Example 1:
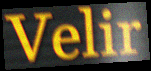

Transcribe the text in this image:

Velir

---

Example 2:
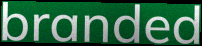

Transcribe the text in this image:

branded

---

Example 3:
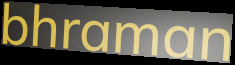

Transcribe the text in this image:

bhraman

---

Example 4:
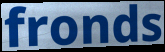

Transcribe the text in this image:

fronds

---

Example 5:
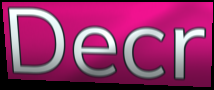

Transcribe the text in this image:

Decr